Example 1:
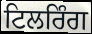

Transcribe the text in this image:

ਟਿਲਰਿੰਗ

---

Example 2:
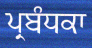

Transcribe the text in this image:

ਪ੍ਰਬੰਧਕਾ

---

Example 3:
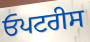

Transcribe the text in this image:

ਓਪਟਰੀਸ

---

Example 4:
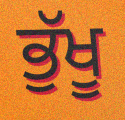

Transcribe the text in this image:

ਭੁੱਖੂ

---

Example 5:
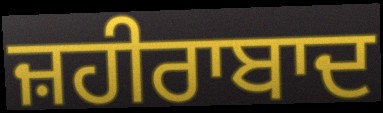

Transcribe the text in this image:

ਜ਼ਹੀਰਾਬਾਦ